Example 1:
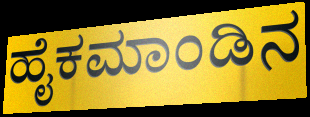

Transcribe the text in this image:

ಹೈಕಮಾಂಡಿನ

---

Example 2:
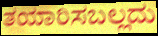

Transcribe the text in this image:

ತಯಾರಿಸಬಲ್ಲದು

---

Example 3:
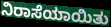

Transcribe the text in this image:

ನಿರಾಸೆಯಾಯಿತು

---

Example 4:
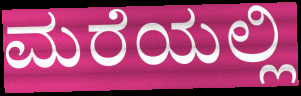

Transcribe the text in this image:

ಮರೆಯಲ್ಲಿ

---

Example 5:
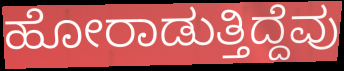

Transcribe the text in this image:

ಹೋರಾಡುತ್ತಿದ್ದೆವು